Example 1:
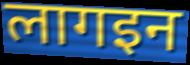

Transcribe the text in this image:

लागइन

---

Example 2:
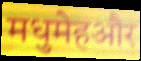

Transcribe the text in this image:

मधुमेहऔर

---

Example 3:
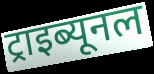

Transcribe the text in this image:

ट्राइब्यूनल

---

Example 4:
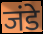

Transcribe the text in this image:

जंडे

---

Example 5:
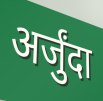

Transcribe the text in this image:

अर्जुंदा